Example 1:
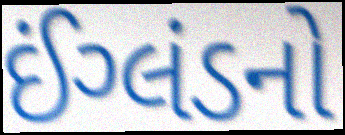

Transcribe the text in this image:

ઈંગ્લંડનો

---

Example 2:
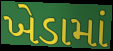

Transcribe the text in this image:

ખેડામાં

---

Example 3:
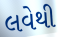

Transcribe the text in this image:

લવેથી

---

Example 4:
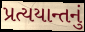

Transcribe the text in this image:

પ્રત્યયાન્તનું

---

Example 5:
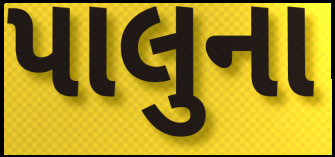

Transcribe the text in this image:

પાલુના